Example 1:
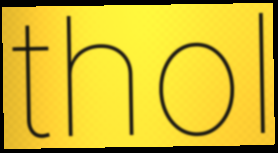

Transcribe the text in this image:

thol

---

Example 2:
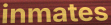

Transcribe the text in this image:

inmates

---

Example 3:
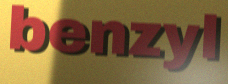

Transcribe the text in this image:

benzyl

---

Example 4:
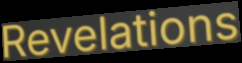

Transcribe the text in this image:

Revelations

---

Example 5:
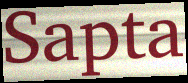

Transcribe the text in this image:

Sapta